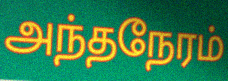
அந்தநேரம்